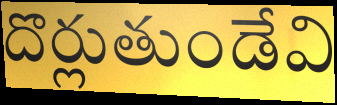
దొర్లుతుండేవి